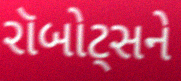
રૉબોટ્સને